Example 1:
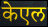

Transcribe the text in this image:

केएल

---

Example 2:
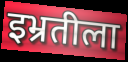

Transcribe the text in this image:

इभ्रतीला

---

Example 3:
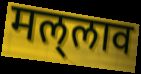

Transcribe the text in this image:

मल्लाव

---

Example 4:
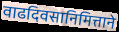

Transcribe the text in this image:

वाढदिवसानिमित्ताने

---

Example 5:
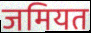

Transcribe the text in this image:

जमियत